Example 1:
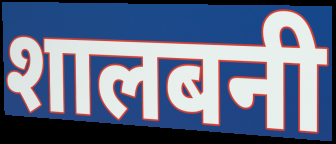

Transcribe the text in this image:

शालबनी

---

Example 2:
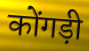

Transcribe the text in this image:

कोंगड़ी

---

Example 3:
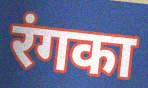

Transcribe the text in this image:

रंगका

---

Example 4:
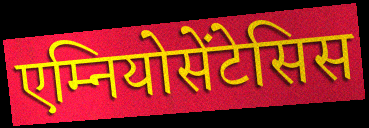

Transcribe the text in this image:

एम्नियोसेंटेसिस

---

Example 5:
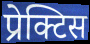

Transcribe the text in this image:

प्रेक्टिस